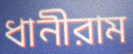
ধানীরাম